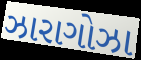
ઝારાગોઝા